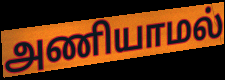
அணியாமல்